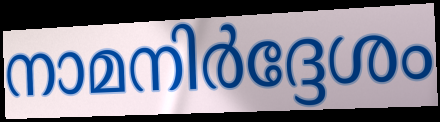
നാമനിർദ്ദേശം